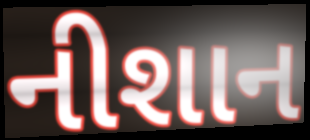
નીશાન